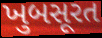
ખુબસૂરત